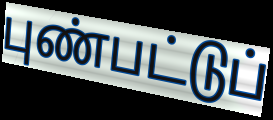
புண்பட்டுப்